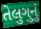
તેલુગુનું